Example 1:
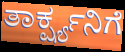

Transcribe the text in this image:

ತಾರ್ಕ್ಷ್ಯನಿಗೆ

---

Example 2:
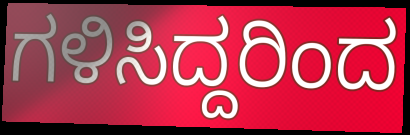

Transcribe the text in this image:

ಗಳಿಸಿದ್ದರಿಂದ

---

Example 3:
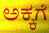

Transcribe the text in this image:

ಅಕ್ಕಗೆ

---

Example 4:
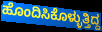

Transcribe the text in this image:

ಹೊಂದಿಸಿಕೊಳ್ಳುತ್ತಿದ್ದ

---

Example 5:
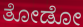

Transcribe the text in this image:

ತೋಡೋ